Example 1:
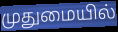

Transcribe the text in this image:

முதுமையில்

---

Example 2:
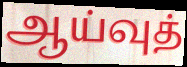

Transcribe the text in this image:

ஆய்வுத்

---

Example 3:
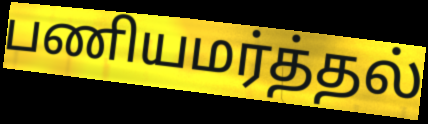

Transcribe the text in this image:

பணியமர்த்தல்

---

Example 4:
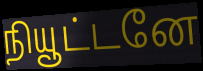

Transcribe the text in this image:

நியூட்டனே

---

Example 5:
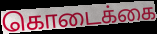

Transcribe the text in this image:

கொடைக்கை